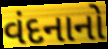
વંદનાનો